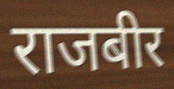
राजबीर